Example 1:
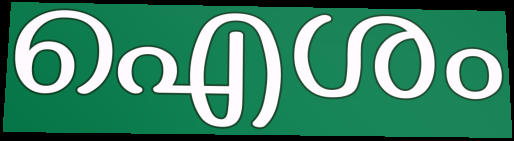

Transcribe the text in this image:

ഐശം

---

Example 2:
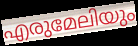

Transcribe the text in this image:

എരുമേലിയും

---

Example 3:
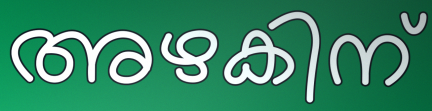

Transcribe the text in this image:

അഴകിന്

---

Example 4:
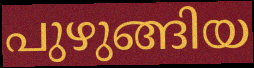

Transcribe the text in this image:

പുഴുങ്ങിയ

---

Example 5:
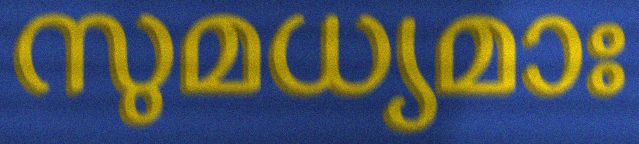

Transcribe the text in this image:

സുമധ്യമാഃ